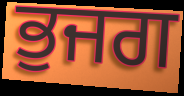
ਭੁਜਗ